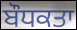
ਬੌਧਕਤਾ